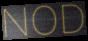
NOD